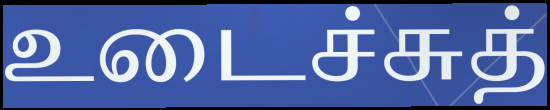
உடைச்சுத்